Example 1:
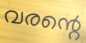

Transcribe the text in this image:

വരന്റെ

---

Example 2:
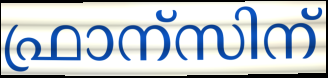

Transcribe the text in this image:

ഫ്രാന്സിന്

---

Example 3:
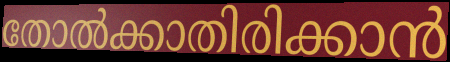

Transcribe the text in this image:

തോൽക്കാതിരിക്കാൻ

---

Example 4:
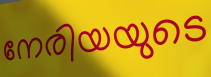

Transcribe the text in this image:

നേരിയയുടെ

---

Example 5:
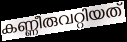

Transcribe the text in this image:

കണ്ണീരുവറ്റിയത്